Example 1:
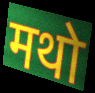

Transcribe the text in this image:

मथो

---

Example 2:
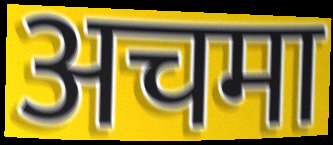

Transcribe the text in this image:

अचमा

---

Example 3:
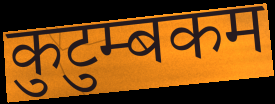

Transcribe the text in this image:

कुटुम्बकम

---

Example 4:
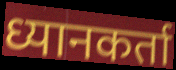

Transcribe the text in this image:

ध्यानकर्ता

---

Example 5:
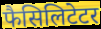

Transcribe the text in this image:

फैसिलिटेटर